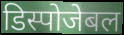
डिस्पोजेबल